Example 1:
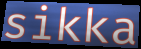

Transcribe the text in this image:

sikka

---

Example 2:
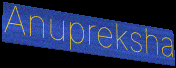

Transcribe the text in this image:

Anupreksha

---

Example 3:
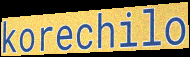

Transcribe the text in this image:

korechilo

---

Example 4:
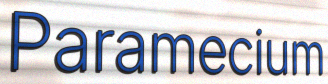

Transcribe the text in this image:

Paramecium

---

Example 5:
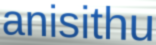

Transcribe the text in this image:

anisithu